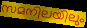
സമനിലയിലും